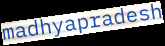
madhyapradesh